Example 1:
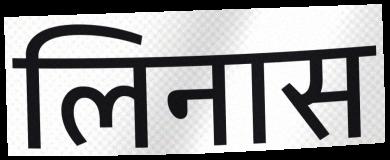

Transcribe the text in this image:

लिनास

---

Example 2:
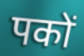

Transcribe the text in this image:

पकों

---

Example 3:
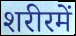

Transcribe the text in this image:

शरीरमें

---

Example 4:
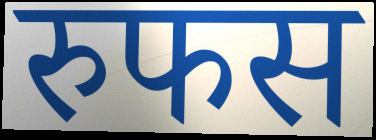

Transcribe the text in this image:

रुफस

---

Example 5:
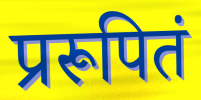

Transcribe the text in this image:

प्ररूपितं